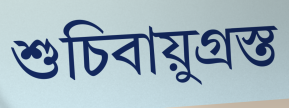
শুচিবায়ুগ্ৰস্ত